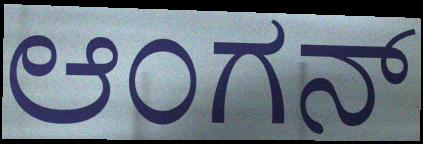
ಆಂಗನ್